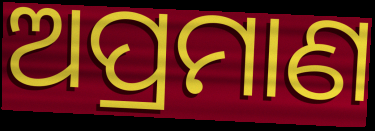
ଅପ୍ରମାଣ